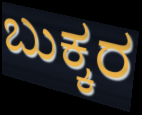
ಬುಕ್ಕರ